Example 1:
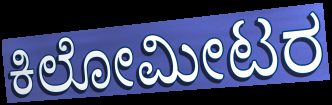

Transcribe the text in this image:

ಕಿಲೋಮೀಟರ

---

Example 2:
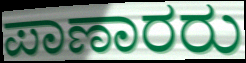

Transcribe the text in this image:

ಪಾಣಾರರು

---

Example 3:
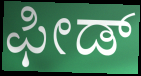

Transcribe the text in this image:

ಫೀಡ್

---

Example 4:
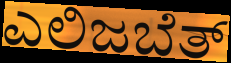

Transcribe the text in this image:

ಎಲಿಜಬೆತ್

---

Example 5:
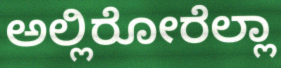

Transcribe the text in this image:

ಅಲ್ಲಿರೋರೆಲ್ಲಾ